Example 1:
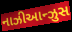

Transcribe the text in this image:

નાઝીઆન્ઝુસ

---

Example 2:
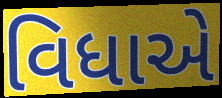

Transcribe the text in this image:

વિધાએ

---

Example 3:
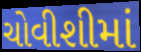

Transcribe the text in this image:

ચોવીશીમાં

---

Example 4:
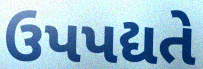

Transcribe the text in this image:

ઉપપદ્યતે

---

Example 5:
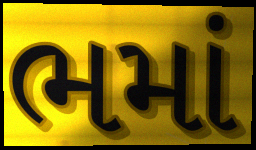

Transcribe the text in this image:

ભમાં